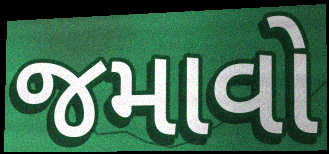
જમાવો